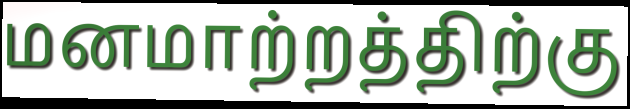
மனமாற்றத்திற்கு